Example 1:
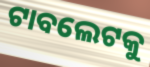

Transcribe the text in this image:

ଟାବଲେଟକୁ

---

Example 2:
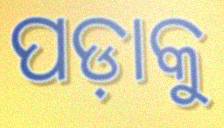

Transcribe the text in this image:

ପଡ଼ାକୁ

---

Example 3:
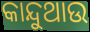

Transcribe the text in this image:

କାନ୍ଦୁଥାଉ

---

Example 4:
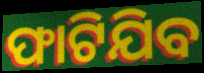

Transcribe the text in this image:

ଫାଟିଯିବ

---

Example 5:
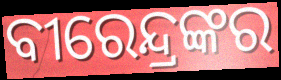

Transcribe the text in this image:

ବୀରେନ୍ଦ୍ରଙ୍କର